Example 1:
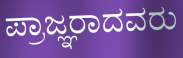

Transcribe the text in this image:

ಪ್ರಾಜ್ಞರಾದವರು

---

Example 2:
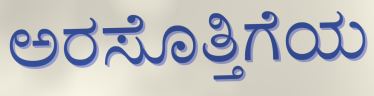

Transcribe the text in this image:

ಅರಸೊತ್ತಿಗೆಯ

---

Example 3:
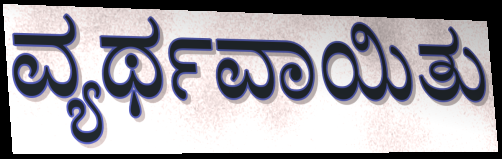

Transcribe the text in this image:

ವ್ಯರ್ಥವಾಯಿತು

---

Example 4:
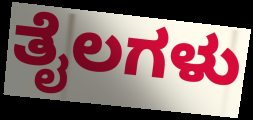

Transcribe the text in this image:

ತೈಲಗಳು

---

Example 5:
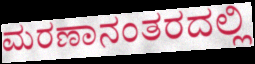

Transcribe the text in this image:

ಮರಣಾನಂತರದಲ್ಲಿ